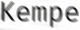
Kempe